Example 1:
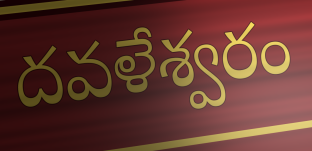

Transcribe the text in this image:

దవళేశ్వరం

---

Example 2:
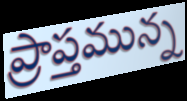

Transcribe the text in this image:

ప్రాప్తమున్న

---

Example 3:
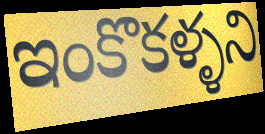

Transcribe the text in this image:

ఇంకొకళ్ళని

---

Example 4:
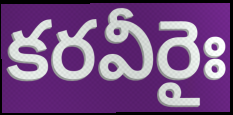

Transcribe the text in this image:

కరవీరైః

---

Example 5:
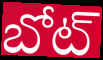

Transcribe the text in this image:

బోట్